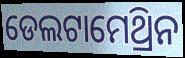
ଡେଲଟାମେଥ୍ରିନ